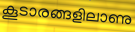
കൂടാരങ്ങളിലാണു